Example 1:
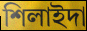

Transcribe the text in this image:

শিলাইদা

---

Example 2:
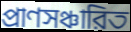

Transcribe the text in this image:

প্রাণসঞ্চারিত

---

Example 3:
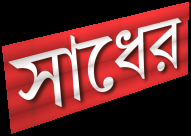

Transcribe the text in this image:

সাধের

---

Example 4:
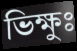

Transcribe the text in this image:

ভিক্ষুঃ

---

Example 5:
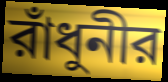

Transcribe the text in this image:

রাঁধুনীর